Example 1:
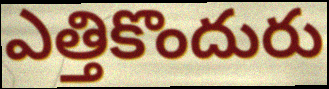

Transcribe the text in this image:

ఎత్తికొందురు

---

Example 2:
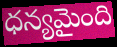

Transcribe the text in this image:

ధన్యమైంది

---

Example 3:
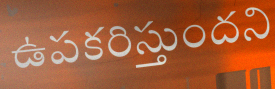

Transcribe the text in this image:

ఉపకరిస్తుందని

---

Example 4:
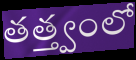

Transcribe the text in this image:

తత్త్వంలో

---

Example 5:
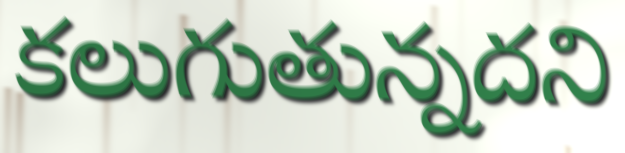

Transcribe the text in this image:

కలుగుతున్నదని